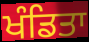
ਖੰਡਿਤਾ